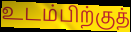
உடம்பிற்குத்